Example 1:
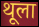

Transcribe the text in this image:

थूला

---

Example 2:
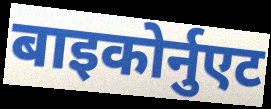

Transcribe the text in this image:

बाइकोर्नुएट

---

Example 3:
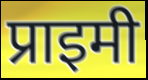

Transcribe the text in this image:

प्राइमी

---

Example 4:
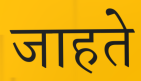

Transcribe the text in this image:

जाहते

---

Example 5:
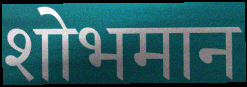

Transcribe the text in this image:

शोभमान